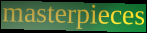
masterpieces